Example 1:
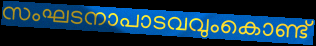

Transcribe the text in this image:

സംഘടനാപാടവവുംകൊണ്ട്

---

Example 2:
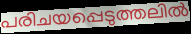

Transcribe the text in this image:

പരിചയപ്പെടുത്തലിൽ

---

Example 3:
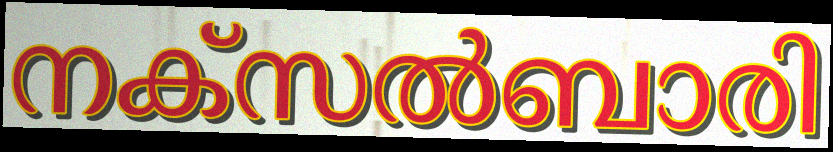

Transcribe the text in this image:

നക്സൽബാരി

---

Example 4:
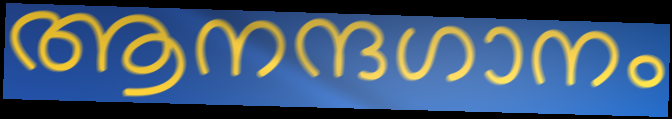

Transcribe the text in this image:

ആനന്ദഗാനം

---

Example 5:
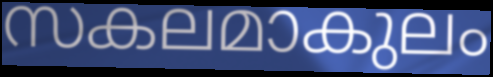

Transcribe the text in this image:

സകലമാകുലം